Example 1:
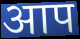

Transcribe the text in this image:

आप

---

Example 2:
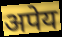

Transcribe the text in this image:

अपेय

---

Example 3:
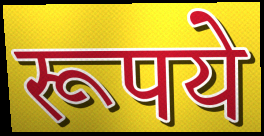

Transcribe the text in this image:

रूपये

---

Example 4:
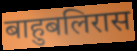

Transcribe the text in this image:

बाहुबलिरास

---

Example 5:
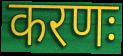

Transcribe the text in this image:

करणः